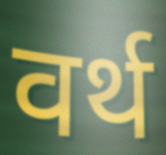
वर्थ